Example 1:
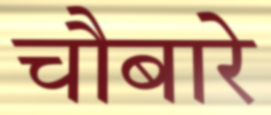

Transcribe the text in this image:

चौबारे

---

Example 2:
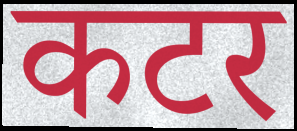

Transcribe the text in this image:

कटर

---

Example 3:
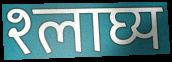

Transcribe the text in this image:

श्लाघ्य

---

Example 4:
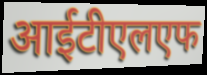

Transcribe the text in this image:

आईटीएलएफ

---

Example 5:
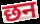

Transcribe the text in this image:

छन